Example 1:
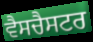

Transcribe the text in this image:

ਵੈਸਚੈਸਟਰ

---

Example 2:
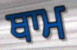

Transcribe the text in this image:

ਥਾਮ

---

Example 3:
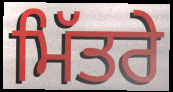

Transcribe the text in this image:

ਮਿੱਤਰੇ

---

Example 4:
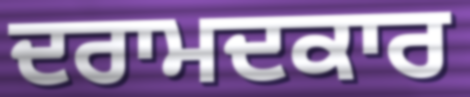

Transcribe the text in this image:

ਦਰਾਮਦਕਾਰ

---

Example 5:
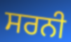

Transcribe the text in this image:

ਸਰਨੀ